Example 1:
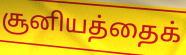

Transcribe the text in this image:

சூனியத்தைக்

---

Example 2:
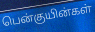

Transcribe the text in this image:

பென்குயின்கள்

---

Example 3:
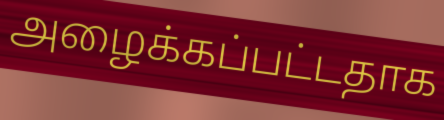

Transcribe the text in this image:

அழைக்கப்பட்டதாக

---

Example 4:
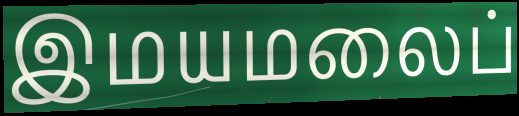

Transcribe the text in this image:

இமயமலைப்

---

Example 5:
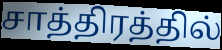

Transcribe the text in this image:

சாத்திரத்தில்